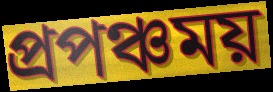
প্রপঞ্চময়